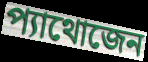
প্যাথোজেন